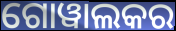
ଗୋୱାଲକର